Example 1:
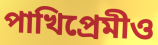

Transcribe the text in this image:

পাখিপ্রেমীও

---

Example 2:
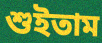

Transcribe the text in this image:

শুইতাম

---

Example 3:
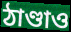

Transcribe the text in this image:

ঠাণ্ডাও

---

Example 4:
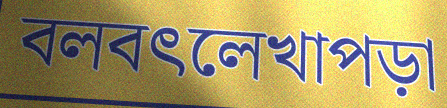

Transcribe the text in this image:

বলবৎলেখাপড়া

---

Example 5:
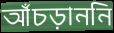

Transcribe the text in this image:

আঁচড়াননি